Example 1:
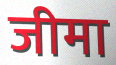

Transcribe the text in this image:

जीमा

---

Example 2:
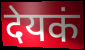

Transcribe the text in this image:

देयकं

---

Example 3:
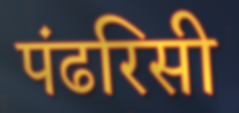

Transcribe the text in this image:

पंढरिसी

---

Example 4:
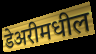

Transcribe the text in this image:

डेअरीमधील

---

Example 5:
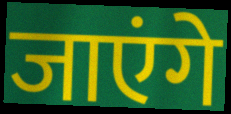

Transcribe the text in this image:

जाएंगे